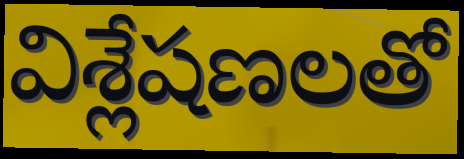
విశ్లేషణలతో